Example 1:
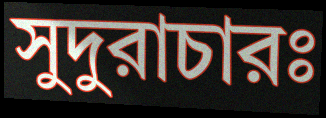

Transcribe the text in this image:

সুদুরাচারঃ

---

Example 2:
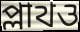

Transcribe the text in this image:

প্লাথও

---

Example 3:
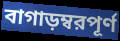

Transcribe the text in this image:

বাগাড়ম্বরপূর্ণ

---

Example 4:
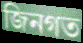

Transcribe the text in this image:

জিনগত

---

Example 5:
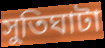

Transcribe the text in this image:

সুতিঘাটা